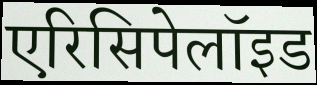
एरिसिपेलॉइड